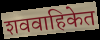
शववाहिकेत